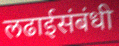
लढाईसंबंधी